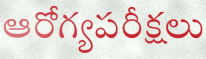
ఆరోగ్యపరీక్షలు